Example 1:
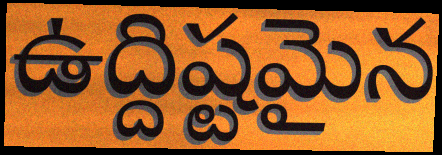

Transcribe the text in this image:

ఉద్దిష్టమైన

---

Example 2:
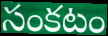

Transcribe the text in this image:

సంకటం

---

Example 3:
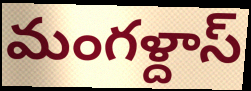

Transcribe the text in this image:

మంగళ్దాస్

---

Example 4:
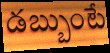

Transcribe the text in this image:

డబ్బుంటే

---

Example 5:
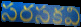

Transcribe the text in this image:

సరసకవి